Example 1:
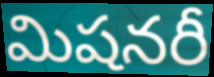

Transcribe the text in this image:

మిషనరీ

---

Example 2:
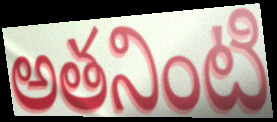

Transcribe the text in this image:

అతనింటి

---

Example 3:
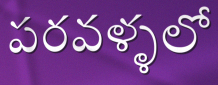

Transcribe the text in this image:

పరవళ్ళలో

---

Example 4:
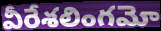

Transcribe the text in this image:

వీరేశలింగమో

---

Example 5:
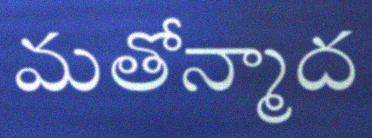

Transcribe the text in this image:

మతోన్మాద